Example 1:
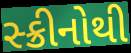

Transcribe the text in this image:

સ્ક્રીનોથી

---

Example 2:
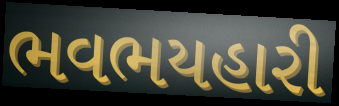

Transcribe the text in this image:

ભવભયહારી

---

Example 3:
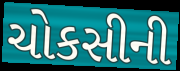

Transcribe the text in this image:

ચોકસીની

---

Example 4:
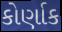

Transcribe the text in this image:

કોર્ણાક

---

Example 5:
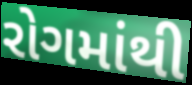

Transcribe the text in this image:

રોગમાંથી